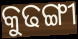
କୁଢଙ୍ଗୀ